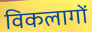
विकलागों